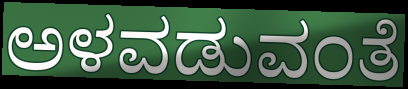
ಅಳವಡುವಂತೆ